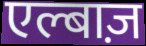
एल्बाज़